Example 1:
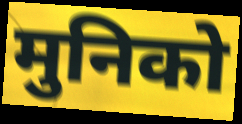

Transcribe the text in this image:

मुनिको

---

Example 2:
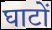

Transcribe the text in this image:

घाटों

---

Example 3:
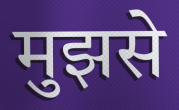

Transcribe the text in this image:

मुझसे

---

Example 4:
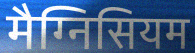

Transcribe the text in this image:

मैग्निसियम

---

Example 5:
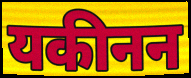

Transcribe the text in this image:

यकीनन